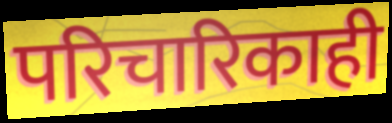
परिचारिकाही